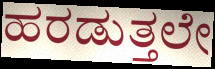
ಹರಡುತ್ತಲೇ